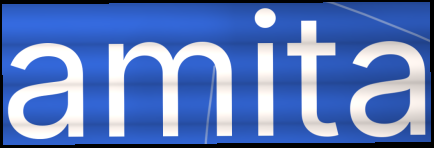
amita